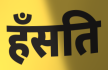
हँसति